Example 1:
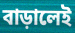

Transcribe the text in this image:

বাড়ালেই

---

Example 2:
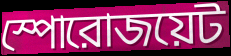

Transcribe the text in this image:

স্পোরোজয়েট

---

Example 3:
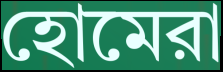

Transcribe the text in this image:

হোমেরা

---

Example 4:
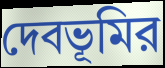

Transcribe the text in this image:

দেবভূমির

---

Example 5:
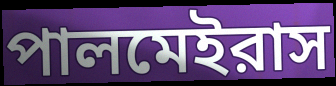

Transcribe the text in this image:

পালমেইরাস